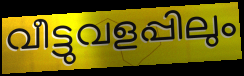
വീട്ടുവളപ്പിലും